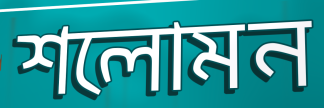
শলোমন